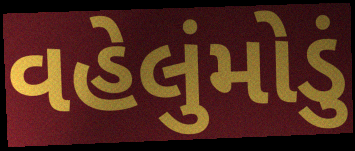
વહેલુંમોડું